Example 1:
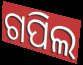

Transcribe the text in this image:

ଗପିଲ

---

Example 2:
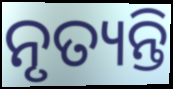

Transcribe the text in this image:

ନୃତ୍ୟନ୍ତି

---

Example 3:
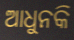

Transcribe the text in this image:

ଆଧୁନକି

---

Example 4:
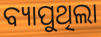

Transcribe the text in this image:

ବ୍ୟାପୁଥିଲା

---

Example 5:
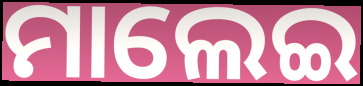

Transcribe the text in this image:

ମାଲେଇ